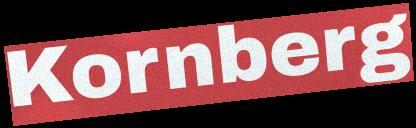
Kornberg